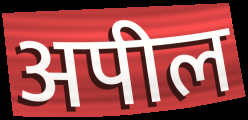
अपील